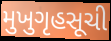
મુખુગૃહસૂચી